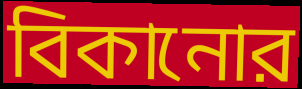
বিকানোর